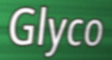
Glyco